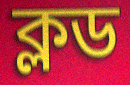
ক্লড